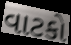
વાટકો